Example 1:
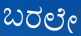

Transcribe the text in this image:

ಬರಲೇ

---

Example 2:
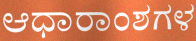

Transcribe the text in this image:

ಆಧಾರಾಂಶಗಳ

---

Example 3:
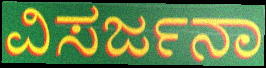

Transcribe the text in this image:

ವಿಸರ್ಜನಾ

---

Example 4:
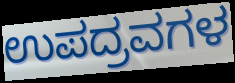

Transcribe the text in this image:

ಉಪದ್ರವಗಳ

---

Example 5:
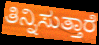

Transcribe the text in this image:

ತಿನ್ನಿಸುತ್ತಾರೆ